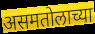
असमतोलाच्या